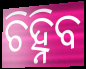
ଚିହ୍ନିବ